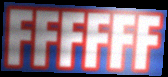
FFFFFF